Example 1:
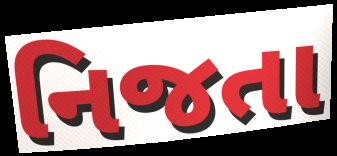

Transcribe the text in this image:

નિજતા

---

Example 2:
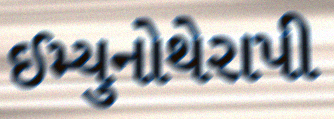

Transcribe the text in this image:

ઈમ્યુનોથેરાપી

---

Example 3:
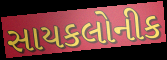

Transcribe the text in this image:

સાયકલોનીક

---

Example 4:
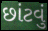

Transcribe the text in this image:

છાંટવું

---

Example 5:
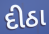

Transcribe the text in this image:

દીઠા